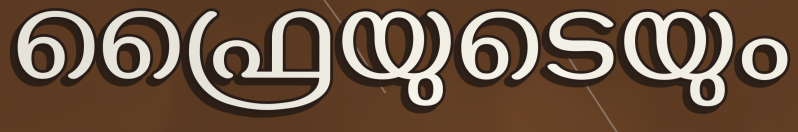
ഫ്രൈയുടെയും